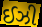
ઈઝી